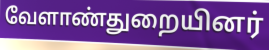
வேளாண்துறையினர்